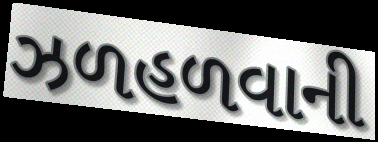
ઝળહળવાની